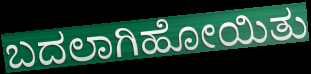
ಬದಲಾಗಿಹೋಯಿತು